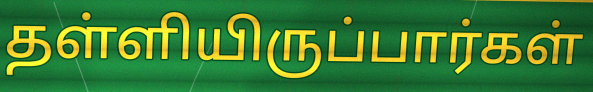
தள்ளியிருப்பார்கள்